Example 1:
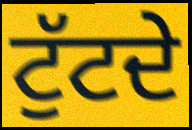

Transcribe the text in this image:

ਟੁੱਟਦੇ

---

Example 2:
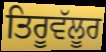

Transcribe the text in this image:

ਤਿਰੂਵੱਲੂਰ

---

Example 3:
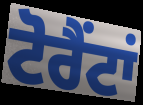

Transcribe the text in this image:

ਟੋਰੈਂਟਾਂ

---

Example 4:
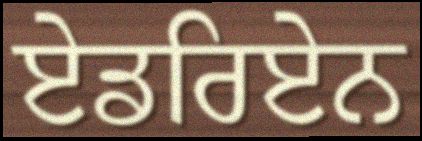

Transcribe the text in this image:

ਏਡਰਿਏਨ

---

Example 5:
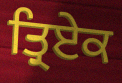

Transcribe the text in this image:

ਤ੍ਰਿਏਕ